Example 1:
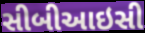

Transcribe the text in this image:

સીબીઆઇસી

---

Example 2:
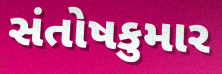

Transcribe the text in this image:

સંતોષકુમાર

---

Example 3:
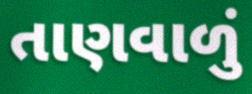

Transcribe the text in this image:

તાણવાળું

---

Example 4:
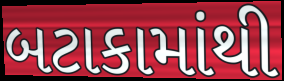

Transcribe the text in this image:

બટાકામાંથી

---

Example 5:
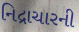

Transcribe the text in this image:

નિદ્રાચારની